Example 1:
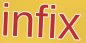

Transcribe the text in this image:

infix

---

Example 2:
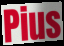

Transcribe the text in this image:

Pius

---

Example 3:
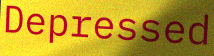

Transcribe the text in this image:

Depressed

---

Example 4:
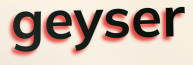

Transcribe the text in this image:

geyser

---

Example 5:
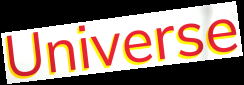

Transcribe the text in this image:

Universe